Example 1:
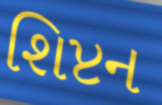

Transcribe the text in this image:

શિપ્ટન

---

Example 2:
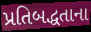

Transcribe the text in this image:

પ્રતિબદ્ધતાના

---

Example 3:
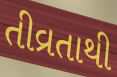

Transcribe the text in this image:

તીવ્રતાથી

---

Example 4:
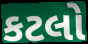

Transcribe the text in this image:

કટલો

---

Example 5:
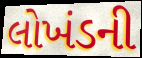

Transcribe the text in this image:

લોખંડની